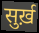
सुर्ख़